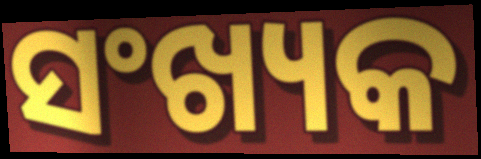
ସଂଖ୍ୟକ